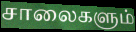
சாலைகளும்